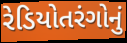
રેડિયોતરંગોનું